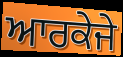
ਆਰਕੇਜੇ